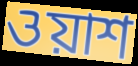
ওয়াশ